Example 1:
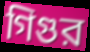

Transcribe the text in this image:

গিগুর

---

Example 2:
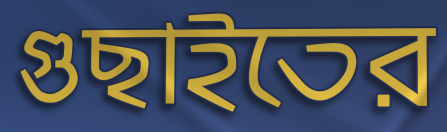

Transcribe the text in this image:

গুছাইতের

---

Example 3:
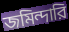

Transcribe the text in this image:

জমিন্দারি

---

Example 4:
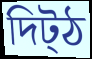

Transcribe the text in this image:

দিট্ঠ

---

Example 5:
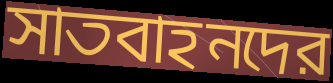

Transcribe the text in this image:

সাতবাহনদের